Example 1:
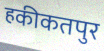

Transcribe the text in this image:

हकीकतपुर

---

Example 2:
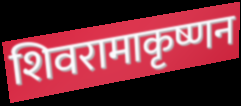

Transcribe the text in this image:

शिवरामाकृष्णन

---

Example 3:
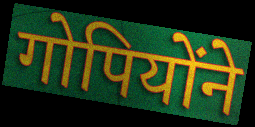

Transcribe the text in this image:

गोपियोंने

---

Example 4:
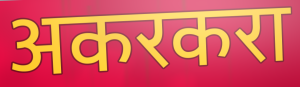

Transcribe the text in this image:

अकरकरा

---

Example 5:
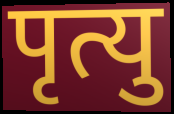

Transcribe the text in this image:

पृत्यु